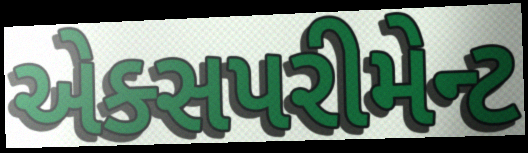
એક્સપરીમેન્ટ